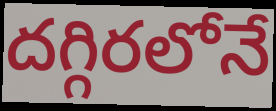
దగ్గిరలోనే